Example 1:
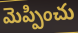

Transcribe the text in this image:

మెప్పించు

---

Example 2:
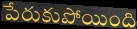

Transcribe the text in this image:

పేరుకుపోయింది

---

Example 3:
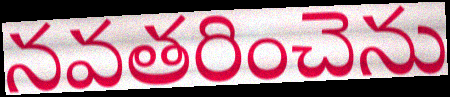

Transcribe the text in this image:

నవతరించెను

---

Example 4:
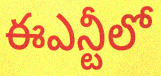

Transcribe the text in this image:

ఈఎన్టీలో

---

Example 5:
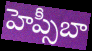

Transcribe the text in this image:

హెప్సీబా